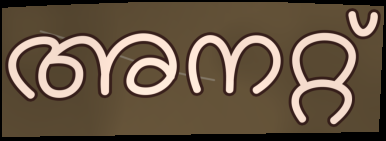
അനറ്റ്